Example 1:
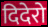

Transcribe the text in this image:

दिदेरो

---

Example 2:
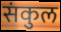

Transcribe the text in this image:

संकुल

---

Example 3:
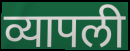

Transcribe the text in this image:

व्यापली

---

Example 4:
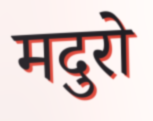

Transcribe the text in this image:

मदुरो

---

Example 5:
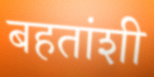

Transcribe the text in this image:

बहतांशी